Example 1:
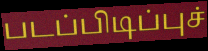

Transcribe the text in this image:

படப்பிடிப்புச்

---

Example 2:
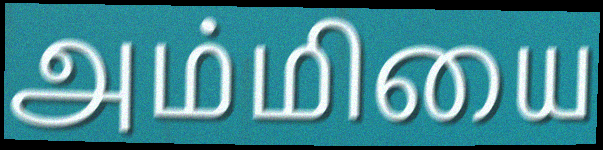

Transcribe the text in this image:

அம்மியை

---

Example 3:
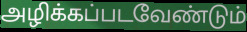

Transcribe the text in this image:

அழிக்கப்படவேண்டும்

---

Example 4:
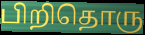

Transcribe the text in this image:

பிறிதொரு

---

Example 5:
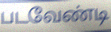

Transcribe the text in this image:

படவேண்டி